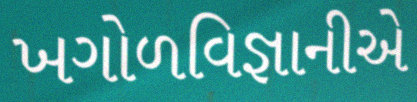
ખગોળવિજ્ઞાનીએ